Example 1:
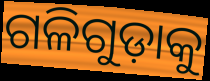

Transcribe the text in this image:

ଗଳିଗୁଡ଼ାକୁ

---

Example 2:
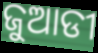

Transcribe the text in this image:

ଜୁଆଡୀ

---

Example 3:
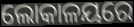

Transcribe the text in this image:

ଲୋକାଳୟରେ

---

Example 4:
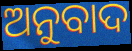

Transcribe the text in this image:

ଅନୁବାଦ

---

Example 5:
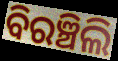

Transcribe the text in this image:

ବିରଞ୍ଚିଲି